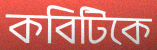
কবিটিকে